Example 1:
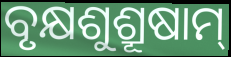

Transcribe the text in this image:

ବୃକ୍ଷଶୁଶ୍ରୂଷାମ୍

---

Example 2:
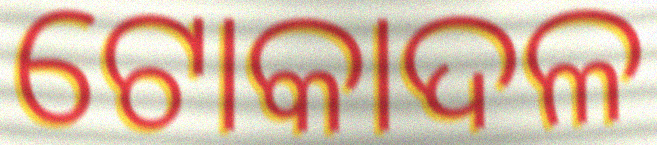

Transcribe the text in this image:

ଟୋକାଦଳ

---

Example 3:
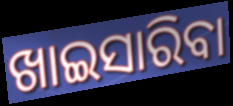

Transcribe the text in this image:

ଖାଇସାରିବା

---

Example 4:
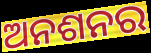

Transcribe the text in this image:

ଅନଶନର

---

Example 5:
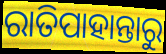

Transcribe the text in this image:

ରାତିପାହାନ୍ତାରୁ